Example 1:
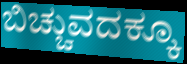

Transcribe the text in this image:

ಬಿಚ್ಚುವದಕ್ಕೂ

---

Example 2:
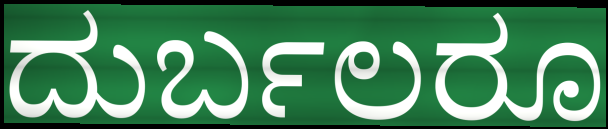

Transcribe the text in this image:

ದುರ್ಬಲರೂ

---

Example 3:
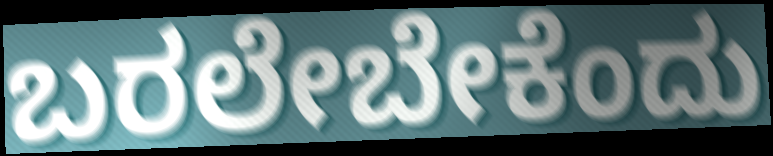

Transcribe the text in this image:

ಬರಲೇಬೇಕೆಂದು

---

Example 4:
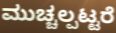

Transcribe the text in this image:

ಮುಚ್ಚಲ್ಪಟ್ಟರೆ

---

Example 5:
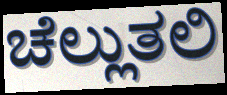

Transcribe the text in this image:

ಚೆಲ್ಲುತಲಿ